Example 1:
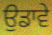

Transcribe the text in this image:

ਉਡਾਵੇ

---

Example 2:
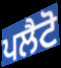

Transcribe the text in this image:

ਪਲੈਟੋ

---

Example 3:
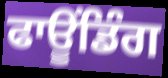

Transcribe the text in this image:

ਫਾਊਂਡਿੰਗ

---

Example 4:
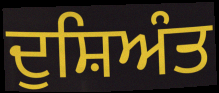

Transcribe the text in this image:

ਦੁਸ਼ਿਅੰਤ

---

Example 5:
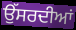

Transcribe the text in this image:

ਉੱਸਰਦੀਆਂ